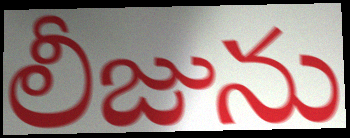
లీజును